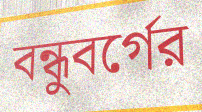
বন্ধুবর্গের